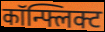
कॉन्फ्लिक्ट